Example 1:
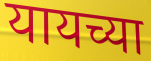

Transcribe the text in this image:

यायच्या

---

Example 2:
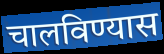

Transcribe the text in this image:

चालविण्यास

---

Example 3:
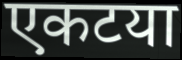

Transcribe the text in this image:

एकटया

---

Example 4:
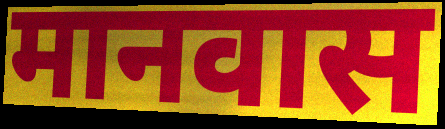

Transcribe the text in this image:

मानवास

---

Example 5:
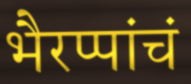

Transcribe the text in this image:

भैरप्पांचं